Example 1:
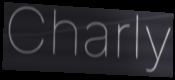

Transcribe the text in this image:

Charly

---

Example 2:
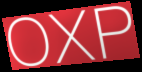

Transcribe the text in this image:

OXP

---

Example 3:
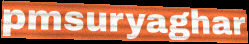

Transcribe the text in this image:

pmsuryaghar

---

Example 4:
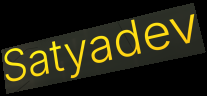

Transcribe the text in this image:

Satyadev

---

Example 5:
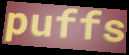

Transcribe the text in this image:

puffs